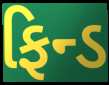
ફિન્ડ